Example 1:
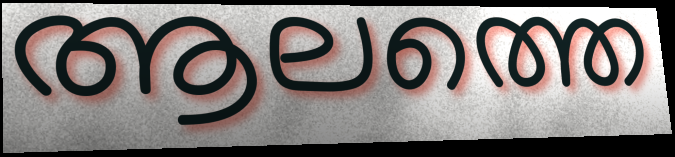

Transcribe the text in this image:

ആലത്തെ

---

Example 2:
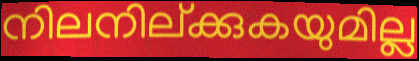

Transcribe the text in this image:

നിലനില്ക്കുകയുമില്ല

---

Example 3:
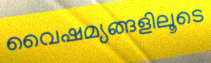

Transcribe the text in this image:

വൈഷമ്യങ്ങളിലൂടെ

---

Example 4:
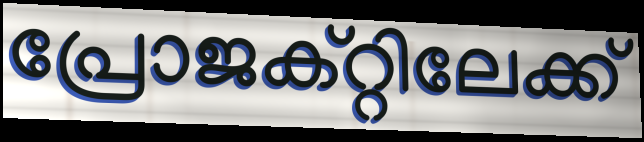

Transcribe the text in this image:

പ്രോജക്റ്റിലേക്ക്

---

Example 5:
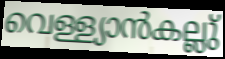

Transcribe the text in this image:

വെള്ള്യാൻകല്ലു്